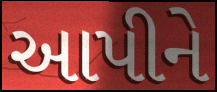
આપીને